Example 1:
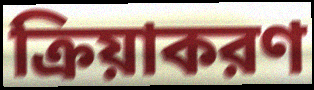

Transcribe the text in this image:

ক্রিয়াকরণ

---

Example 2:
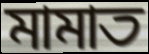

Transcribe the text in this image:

মামাত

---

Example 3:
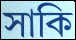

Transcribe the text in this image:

সাকি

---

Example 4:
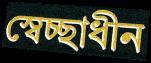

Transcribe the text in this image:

স্বেচ্ছাধীন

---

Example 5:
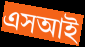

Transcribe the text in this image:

এসআই